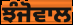
ਝੰਜੋਵਾਲ